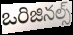
ఒరిజినల్స్